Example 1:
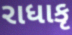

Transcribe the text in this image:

રાધાકૃ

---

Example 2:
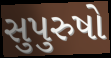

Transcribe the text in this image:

સુપુરુષો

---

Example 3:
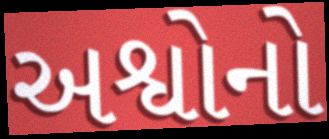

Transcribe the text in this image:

અશ્વોનો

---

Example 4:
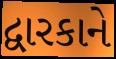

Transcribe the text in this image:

દ્વારકાને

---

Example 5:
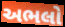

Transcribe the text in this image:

અભલો